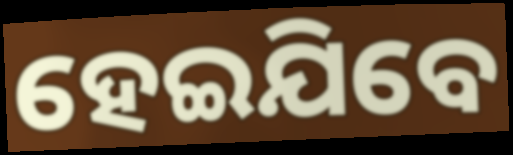
ହେଇଯିବେ